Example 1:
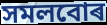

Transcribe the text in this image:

সমলবোৰ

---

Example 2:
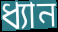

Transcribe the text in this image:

ধ্যান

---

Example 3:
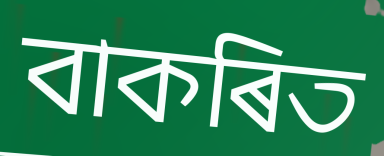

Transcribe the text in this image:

বাকৰিত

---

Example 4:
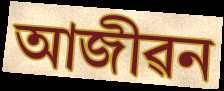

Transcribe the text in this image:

আজীৱন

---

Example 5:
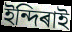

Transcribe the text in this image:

ইন্দিৰাই